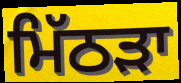
ਮਿੱਠੜਾ